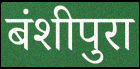
बंशीपुरा